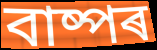
বাষ্পৰ